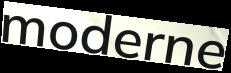
moderne